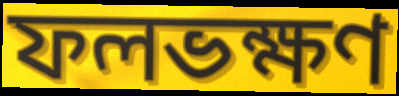
ফলভক্ষণ